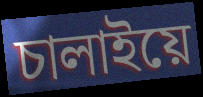
চালাইয়ে